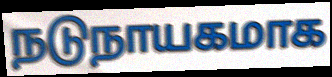
நடுநாயகமாக